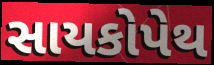
સાયકોપેથ